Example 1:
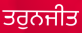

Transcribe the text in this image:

ਤਰੁਨਜੀਤ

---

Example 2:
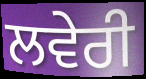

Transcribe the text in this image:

ਲਵੇਰੀ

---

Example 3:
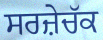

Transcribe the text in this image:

ਸਰਜ਼ੇਚੱਕ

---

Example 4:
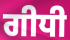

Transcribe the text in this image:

ਗੀਧੀ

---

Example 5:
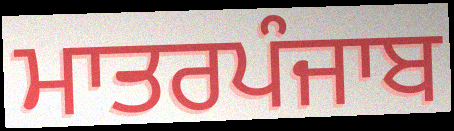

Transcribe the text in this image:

ਮਾਤਰਪੰਜਾਬ